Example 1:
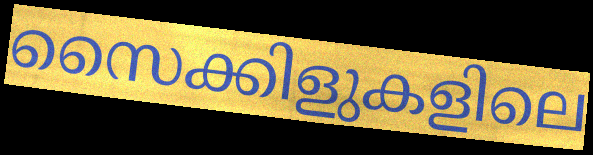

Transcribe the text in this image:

സൈക്കിളുകളിലെ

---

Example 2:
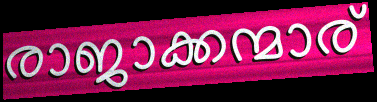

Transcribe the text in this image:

രാജാക്കന്മാര്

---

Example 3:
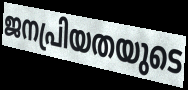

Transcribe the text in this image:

ജനപ്രിയതയുടെ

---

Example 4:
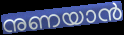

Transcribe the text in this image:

നുണയാൻ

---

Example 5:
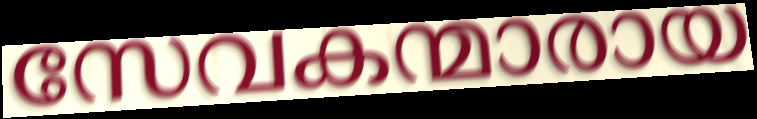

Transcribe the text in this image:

സേവകന്മാരായ